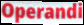
Operandi